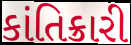
કાંતિક્રારી